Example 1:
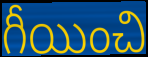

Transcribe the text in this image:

గీయించి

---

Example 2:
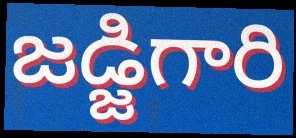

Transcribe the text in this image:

జడ్జిగారి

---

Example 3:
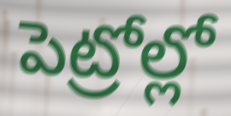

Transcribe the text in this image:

పెట్రోల్లో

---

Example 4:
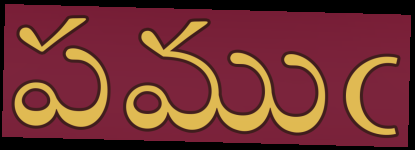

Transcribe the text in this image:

పముఁ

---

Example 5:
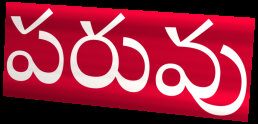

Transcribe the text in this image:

పరువు